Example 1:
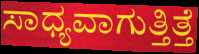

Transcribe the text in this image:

ಸಾಧ್ಯವಾಗುತ್ತಿತ್ತೆ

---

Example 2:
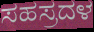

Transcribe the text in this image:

ಸಹಸ್ರದಳ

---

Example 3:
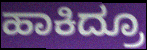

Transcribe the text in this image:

ಹಾಕಿದ್ರೂ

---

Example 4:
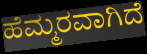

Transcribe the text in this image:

ಹೆಮ್ಮರವಾಗಿದೆ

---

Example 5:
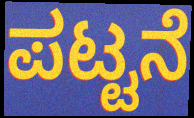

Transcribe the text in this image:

ಪಟ್ಟನೆ